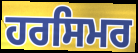
ਹਰਸਿਮਰ